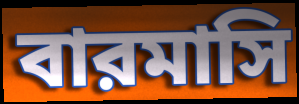
বারমাসি